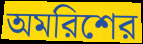
অমরিশের